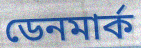
ডেনমার্ক